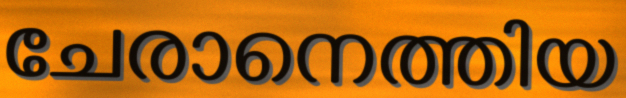
ചേരാനെത്തിയ